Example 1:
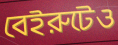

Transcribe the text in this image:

বেইৰুটেও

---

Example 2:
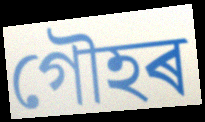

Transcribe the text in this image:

গৌহৰ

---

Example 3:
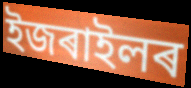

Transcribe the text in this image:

ইজৰাইলৰ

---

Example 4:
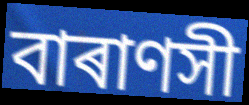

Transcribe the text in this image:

বাৰাণসী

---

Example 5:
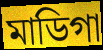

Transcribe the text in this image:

মাডিগা